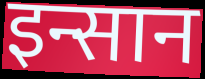
इन्सान